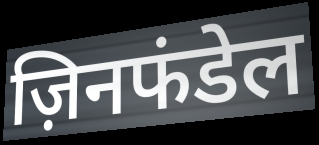
ज़िनफंडेल